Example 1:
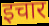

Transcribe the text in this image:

इचार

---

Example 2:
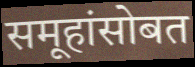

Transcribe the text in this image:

समूहांसोबत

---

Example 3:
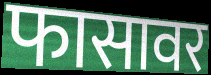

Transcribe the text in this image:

फासावर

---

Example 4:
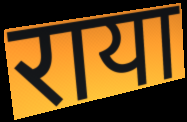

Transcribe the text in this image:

राया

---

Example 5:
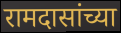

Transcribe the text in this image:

रामदासांच्या